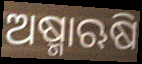
ଅଷ୍ମାଋଷି